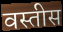
वस्तीस